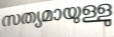
സത്യമായുള്ളു